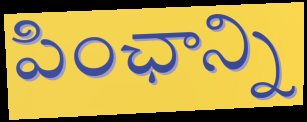
పింఛాన్ని